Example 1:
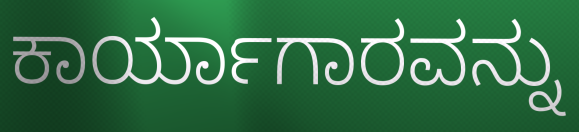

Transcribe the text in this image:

ಕಾರ್ಯಾಗಾರವನ್ನು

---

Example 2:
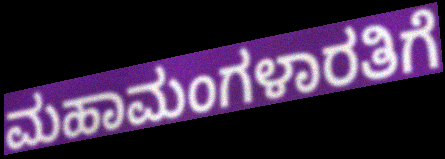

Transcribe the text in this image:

ಮಹಾಮಂಗಳಾರತಿಗೆ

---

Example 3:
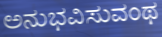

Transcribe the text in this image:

ಅನುಭವಿಸುವಂಥ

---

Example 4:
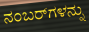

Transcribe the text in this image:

ನಂಬರ್‌ಗಳನ್ನು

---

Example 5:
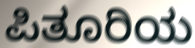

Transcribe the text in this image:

ಪಿತೂರಿಯ